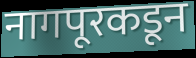
नागपूरकडून